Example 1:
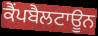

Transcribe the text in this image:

ਕੈਂਪਬੈਲਟਾਊਨ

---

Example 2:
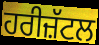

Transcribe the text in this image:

ਹਰੀਜ਼ੱਟਲ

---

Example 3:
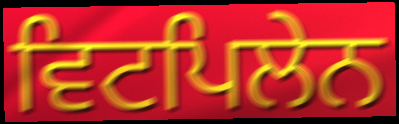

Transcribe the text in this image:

ਵਿਟਪਿਲੇਨ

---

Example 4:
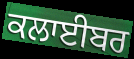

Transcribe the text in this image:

ਕਲਾਈਬਰ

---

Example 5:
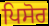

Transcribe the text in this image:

ਪਿਸੋਰ